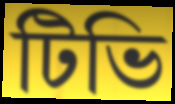
টিভি